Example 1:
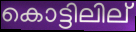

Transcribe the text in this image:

കൊട്ടിലില്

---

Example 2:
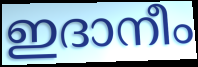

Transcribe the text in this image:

ഇദാനീം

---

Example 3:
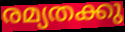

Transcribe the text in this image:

രമ്യതക്കു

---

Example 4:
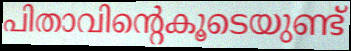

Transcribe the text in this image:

പിതാവിന്റെകൂടെയുണ്ട്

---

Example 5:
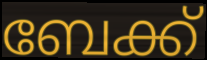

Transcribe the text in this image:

ബേക്ക്